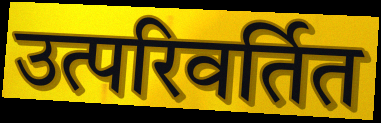
उत्परिवर्तित